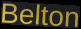
Belton